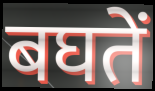
बघतें